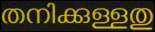
തനിക്കുള്ളതു